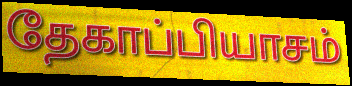
தேகாப்பியாசம்